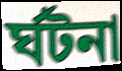
র্ঘটনা